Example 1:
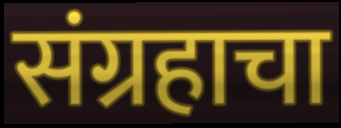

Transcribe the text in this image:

संग्रहाचा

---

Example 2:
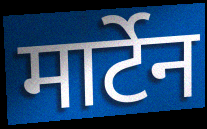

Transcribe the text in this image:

मार्टेन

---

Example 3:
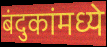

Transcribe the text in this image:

बंदुकांमध्ये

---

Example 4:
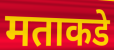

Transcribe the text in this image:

मताकडे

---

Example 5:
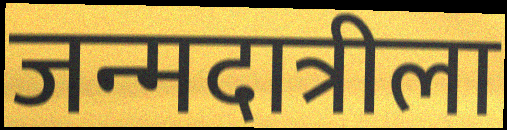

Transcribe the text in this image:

जन्मदात्रीला